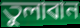
তুলাবান